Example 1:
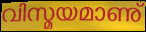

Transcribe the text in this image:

വിസ്മയമാണു്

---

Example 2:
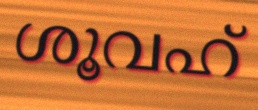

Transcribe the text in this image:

ശൂവഹ്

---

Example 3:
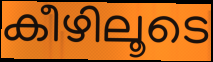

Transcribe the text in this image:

കീഴിലൂടെ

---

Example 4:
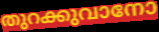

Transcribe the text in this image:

തുറക്കുവാനോ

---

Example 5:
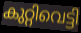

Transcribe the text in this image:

കുറ്റിവെട്ടി